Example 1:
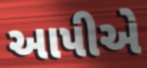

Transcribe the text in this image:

આપીએ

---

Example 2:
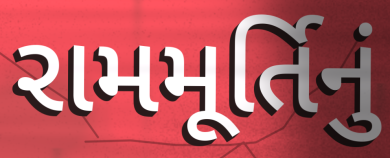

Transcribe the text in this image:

રામમૂર્તિનું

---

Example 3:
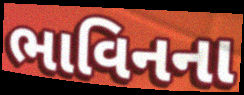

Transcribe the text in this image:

ભાવિનના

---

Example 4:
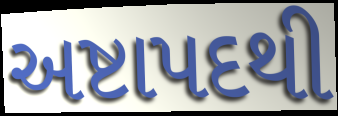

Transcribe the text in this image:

અષ્ટાપદથી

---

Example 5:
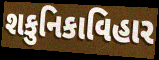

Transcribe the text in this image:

શકુનિકાવિહાર